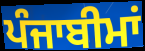
ਪੰਜਾਬੀਮਾਂ